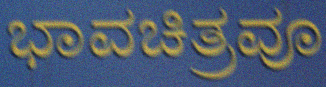
ಭಾವಚಿತ್ರವೂ